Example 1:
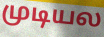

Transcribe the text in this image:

முடியல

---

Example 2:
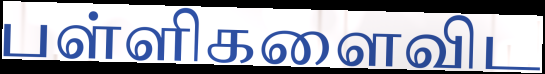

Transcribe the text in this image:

பள்ளிகளைவிட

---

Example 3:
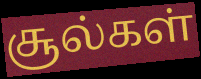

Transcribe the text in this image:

சூல்கள்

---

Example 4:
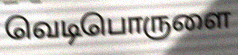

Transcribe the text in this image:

வெடிபொருளை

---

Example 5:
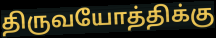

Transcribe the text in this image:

திருவயோத்திக்கு